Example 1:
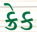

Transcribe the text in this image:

ક્રેક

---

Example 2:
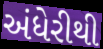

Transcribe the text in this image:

અંધેરીથી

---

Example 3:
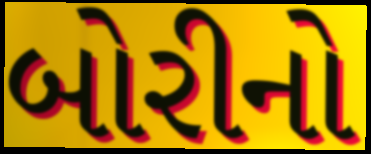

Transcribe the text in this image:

બોરીનો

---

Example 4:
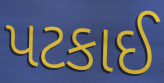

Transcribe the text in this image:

પટકાઈ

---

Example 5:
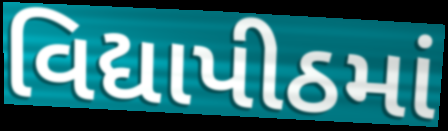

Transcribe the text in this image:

વિદ્યાપીઠમાં